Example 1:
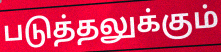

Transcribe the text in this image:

படுத்தலுக்கும்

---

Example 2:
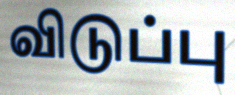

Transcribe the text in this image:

விடுப்பு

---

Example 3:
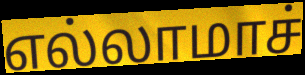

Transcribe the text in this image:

எல்லாமாச்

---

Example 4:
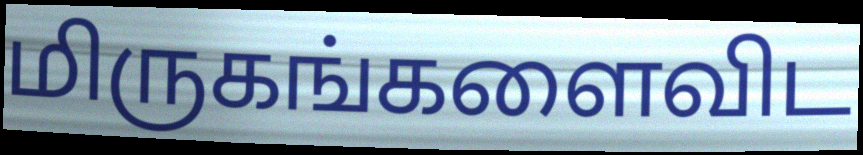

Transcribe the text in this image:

மிருகங்களைவிட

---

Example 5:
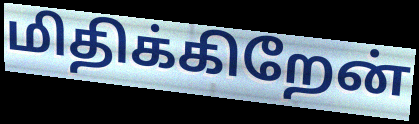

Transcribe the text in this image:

மிதிக்கிறேன்